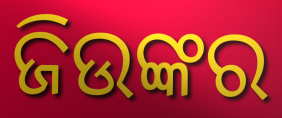
ଜିଉଙ୍କର